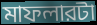
মাফলারটা